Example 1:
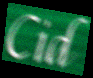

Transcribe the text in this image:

Cid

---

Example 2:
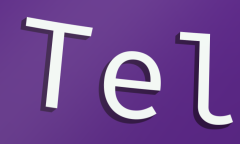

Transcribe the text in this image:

Tel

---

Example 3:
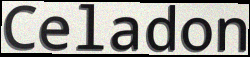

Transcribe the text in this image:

Celadon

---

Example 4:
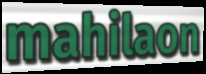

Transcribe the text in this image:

mahilaon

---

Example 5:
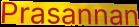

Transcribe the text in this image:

Prasannan